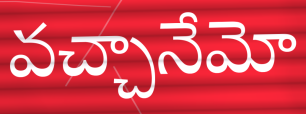
వచ్చానేమో